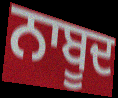
ਨਾਬੂਦ